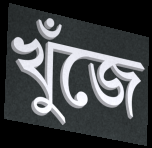
খুঁজে